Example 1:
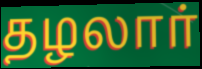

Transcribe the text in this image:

தழலார்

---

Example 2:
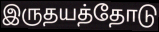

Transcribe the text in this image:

இருதயத்தோடு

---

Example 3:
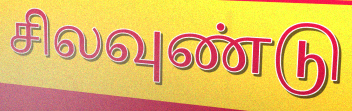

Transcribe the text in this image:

சிலவுண்டு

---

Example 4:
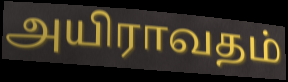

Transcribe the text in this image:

அயிராவதம்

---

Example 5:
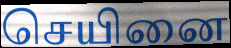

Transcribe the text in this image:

செயினை